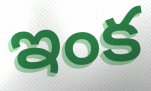
ఇంక